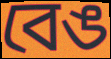
বেঙ